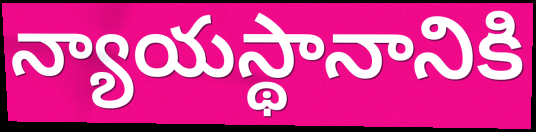
న్యాయస్థానానికి